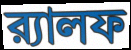
র‍্যালফ